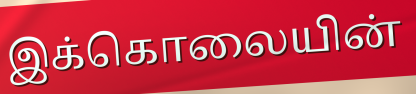
இக்கொலையின்